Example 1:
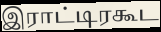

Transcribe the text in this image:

இராட்டிரகூட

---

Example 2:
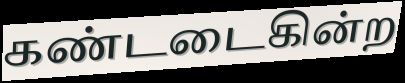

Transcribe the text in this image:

கண்டடைகின்ற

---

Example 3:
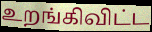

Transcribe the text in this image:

உறங்கிவிட்ட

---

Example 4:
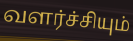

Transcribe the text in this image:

வளர்ச்சியும்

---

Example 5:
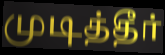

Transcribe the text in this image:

முடித்தீர்